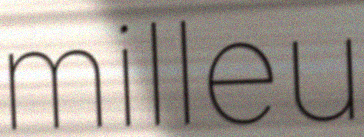
milleu